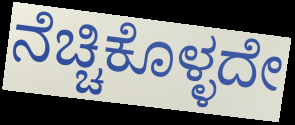
ನೆಚ್ಚಿಕೊಳ್ಳದೇ